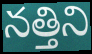
నత్తిని